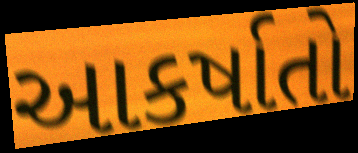
આકર્ષાતો